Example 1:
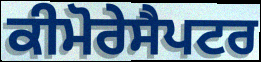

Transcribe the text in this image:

ਕੀਮੋਰੇਸੈਪਟਰ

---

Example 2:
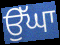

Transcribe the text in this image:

ਉੱਘਾ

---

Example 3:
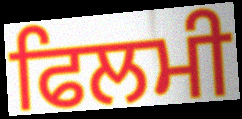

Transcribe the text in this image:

ਫਿਲਮੀ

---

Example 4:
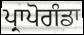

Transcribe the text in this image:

ਪ੍ਰਾਪੋਗੰਡਾ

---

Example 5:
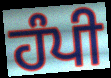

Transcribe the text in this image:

ਹੰਪੀ